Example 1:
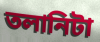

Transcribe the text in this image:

তলানিটা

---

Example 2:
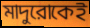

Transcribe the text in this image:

মাদুরোকেই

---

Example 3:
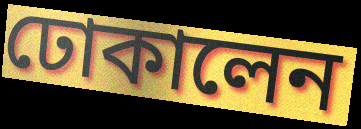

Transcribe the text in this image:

ঢোকালেন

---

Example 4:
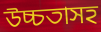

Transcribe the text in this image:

উচ্চতাসহ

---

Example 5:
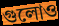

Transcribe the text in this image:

গুলোও